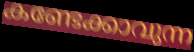
കണ്ടേക്കാവുന്ന